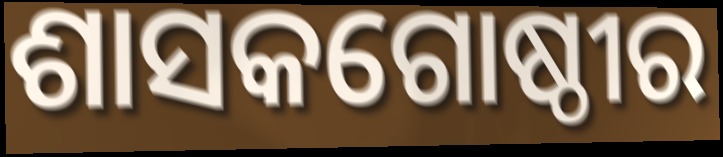
ଶାସକଗୋଷ୍ଠୀର